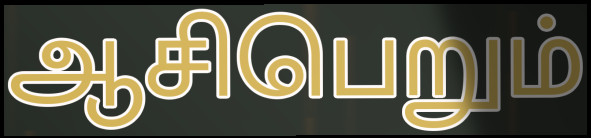
ஆசிபெறும்